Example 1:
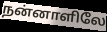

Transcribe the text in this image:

நன்னாளிலே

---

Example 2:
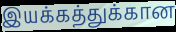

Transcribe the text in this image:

இயக்கத்துக்கான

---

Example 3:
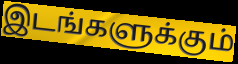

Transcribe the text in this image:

இடங்களுக்கும்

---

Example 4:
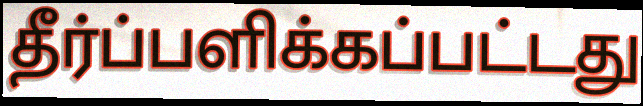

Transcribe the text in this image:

தீர்ப்பளிக்கப்பட்டது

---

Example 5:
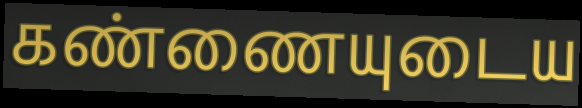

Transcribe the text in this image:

கண்ணையுடைய